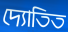
দ্যোতিত